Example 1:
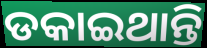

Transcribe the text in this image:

ଡକାଇଥାନ୍ତି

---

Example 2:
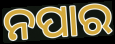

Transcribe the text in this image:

ନପାର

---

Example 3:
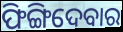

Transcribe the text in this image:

ଫିଙ୍ଗିଦେବାର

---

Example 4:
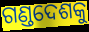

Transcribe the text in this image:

ଗଣ୍ଡଦେଶକୁ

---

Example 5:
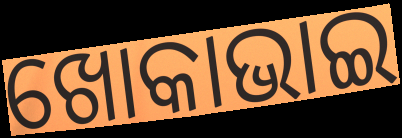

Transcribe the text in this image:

ଖୋକାଭାଇ